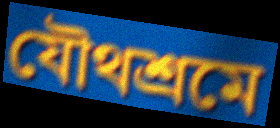
যৌথশ্রমে